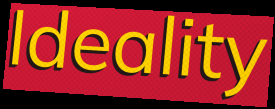
Ideality